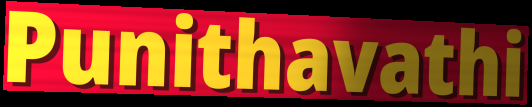
Punithavathi